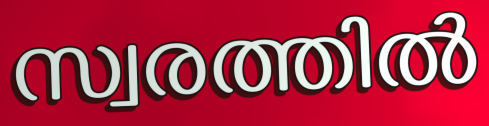
സ്വരത്തിൽ